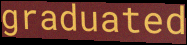
graduated